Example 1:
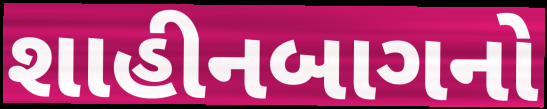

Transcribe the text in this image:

શાહીનબાગનો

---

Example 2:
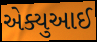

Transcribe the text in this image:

એક્યુઆઈ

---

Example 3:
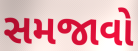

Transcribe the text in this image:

સમજાવો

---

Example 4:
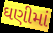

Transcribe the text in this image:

ઘણીમાં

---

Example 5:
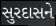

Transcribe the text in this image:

સુરદાસને